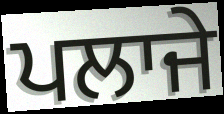
ਪਲਾਜੇ